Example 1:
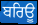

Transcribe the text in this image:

ਬਰਿਊ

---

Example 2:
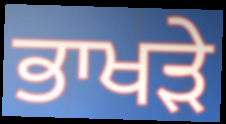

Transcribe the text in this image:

ਭਾਖੜੇ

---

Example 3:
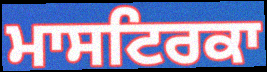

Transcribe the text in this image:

ਮਾਸਟਿਰਕਾ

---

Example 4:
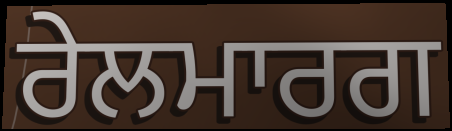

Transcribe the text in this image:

ਰੇਲਮਾਰਗ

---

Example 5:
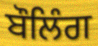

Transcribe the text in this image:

ਬੌਲਿੰਗ